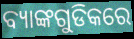
ବ୍ୟାଙ୍କଗୁଡିକରେ